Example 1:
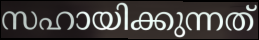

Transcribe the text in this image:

സഹായിക്കുന്നത്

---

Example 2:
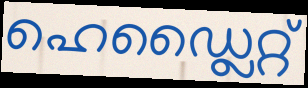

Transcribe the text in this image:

ഹെഡ്ലൈറ്റ്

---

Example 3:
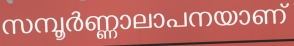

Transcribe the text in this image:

സമ്പൂർണ്ണാലാപനയാണ്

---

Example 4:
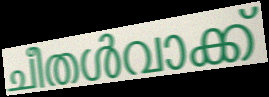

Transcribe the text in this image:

ചീതൾവാക്ക്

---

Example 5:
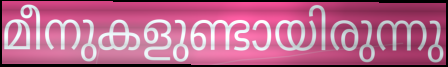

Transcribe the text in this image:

മീനുകളുണ്ടായിരുന്നു